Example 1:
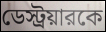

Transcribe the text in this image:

ডেস্ট্রয়ারকে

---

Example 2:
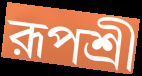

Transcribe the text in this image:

রূপশ্রী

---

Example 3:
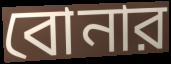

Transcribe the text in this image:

বোনার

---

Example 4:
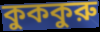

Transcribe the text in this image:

কুককুরু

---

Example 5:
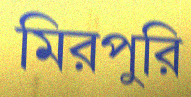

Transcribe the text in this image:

মিরপুরি